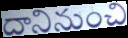
దానినుంచి